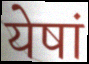
येषां